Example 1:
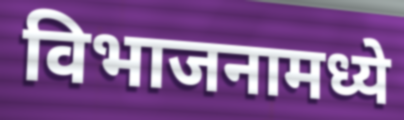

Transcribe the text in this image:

विभाजनामध्ये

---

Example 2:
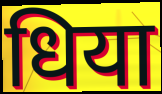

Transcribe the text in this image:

धिया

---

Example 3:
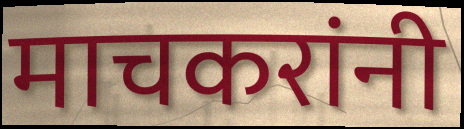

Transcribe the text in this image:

माचकरांनी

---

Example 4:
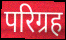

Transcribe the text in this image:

परिग्रह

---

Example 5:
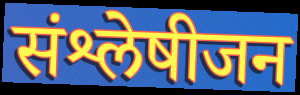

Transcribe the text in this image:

संश्लेषीजन